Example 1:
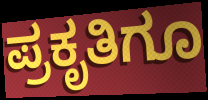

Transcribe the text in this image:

ಪ್ರಕೃತಿಗೂ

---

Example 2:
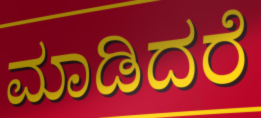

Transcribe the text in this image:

ಮಾಡಿದರೆ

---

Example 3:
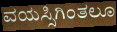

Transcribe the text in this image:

ವಯಸ್ಸಿಗಿಂತಲೂ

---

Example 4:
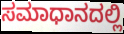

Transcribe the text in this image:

ಸಮಾಧಾನದಲ್ಲಿ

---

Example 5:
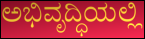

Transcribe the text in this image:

ಅಭಿವೃದ್ಧಿಯಲ್ಲಿ